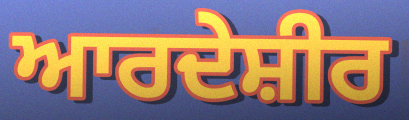
ਆਰਦੇਸ਼ੀਰ